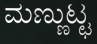
ಮಣ್ಣುಟ್ಟ